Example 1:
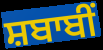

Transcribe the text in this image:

ਸ਼ਬਾਬੀਂ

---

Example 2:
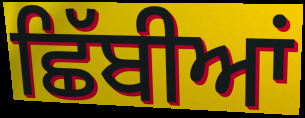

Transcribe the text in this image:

ਛਿੱਬੀਆਂ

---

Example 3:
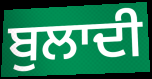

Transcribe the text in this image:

ਬੁਲਾਦੀ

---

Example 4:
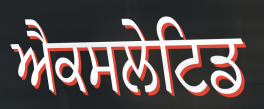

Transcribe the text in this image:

ਐਕਸਲੇਟਿਡ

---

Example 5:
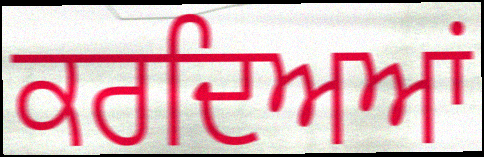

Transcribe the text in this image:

ਕਰਦਿਅਆਂ